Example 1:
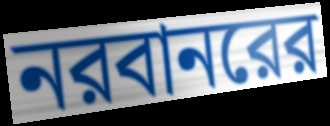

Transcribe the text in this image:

নরবানরের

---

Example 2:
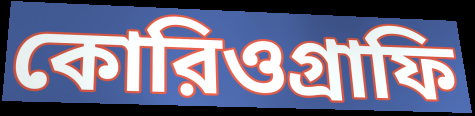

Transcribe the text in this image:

কোরিওগ্রাফি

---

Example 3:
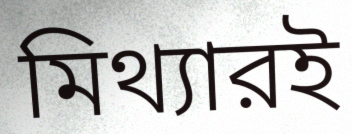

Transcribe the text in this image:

মিথ্যারই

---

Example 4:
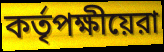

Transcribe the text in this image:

কর্তৃপক্ষীয়েরা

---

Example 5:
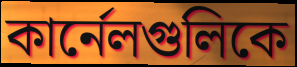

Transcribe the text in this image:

কার্নেলগুলিকে